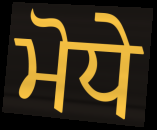
ਮੋਧੇ